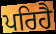
ਪਰਿਹੈ